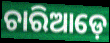
ଚାରିଆଡ଼େ